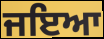
ਜਇਆ